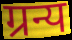
ग्रन्य